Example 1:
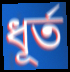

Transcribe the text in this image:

ধূৰ্ত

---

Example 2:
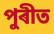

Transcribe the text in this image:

পুৰীত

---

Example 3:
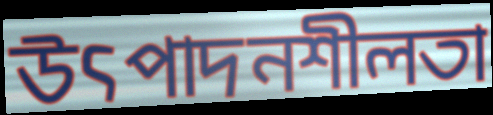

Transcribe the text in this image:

উৎপাদনশীলতা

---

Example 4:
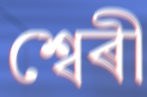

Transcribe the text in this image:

শ্বেৰী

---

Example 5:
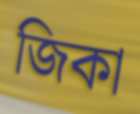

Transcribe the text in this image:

জিকা